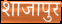
शाजापुर